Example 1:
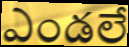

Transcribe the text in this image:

ఎండలే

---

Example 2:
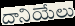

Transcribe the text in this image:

దానియేలు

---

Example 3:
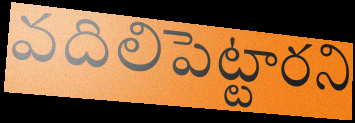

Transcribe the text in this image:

వదిలిపెట్టారని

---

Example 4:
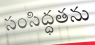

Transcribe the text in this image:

సంసిద్ధతను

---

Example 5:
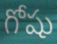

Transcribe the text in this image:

గోషు